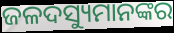
ଜଳଦସ୍ୟୁମାନଙ୍କର